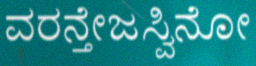
ವರನ್ತೇಜಸ್ವಿನೋ